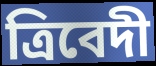
ত্রিবেদী